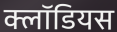
क्लॉडियस